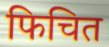
फिचित